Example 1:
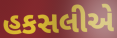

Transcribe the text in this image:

હકસલીએ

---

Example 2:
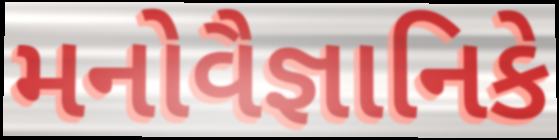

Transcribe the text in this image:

મનોવૈજ્ઞાનિકે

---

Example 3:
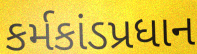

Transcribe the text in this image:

કર્મકાંડપ્રધાન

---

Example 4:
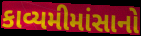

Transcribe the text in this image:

કાવ્યમીમાંસાનો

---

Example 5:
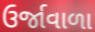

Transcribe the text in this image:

ઉર્જાવાળા